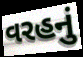
વરહનું